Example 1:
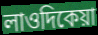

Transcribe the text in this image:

লাওদিকেয়া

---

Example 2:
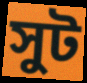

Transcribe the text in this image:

সুট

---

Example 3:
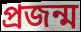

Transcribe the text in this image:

প্রজন্ম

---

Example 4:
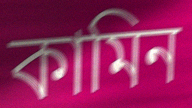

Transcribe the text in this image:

কামিন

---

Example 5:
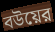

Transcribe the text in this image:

বউয়ের